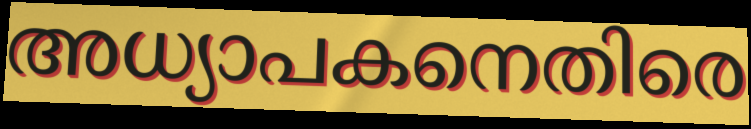
അധ്യാപകനെതിരെ